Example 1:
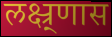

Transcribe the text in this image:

लक्ष्र्णास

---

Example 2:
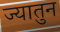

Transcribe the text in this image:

ज्यातुन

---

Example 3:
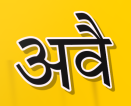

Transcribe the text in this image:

अवै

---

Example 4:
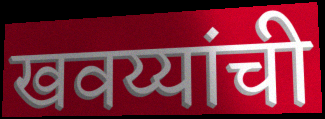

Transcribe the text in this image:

खवय्यांची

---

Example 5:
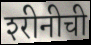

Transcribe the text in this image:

श्रीनीची